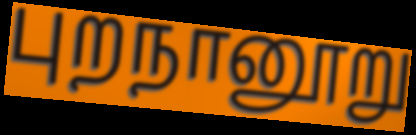
புறநானூறு